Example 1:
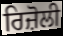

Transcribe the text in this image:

ਰਿਜ਼ੋਲੀ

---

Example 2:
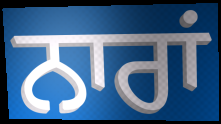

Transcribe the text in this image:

ਨਾਰਾਂ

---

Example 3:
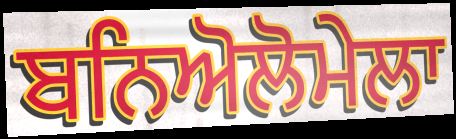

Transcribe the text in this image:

ਬਨਿਅੋਲੋਮੇਲਾ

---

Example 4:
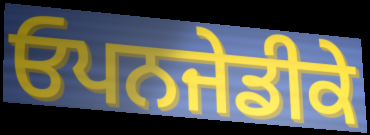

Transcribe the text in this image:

ਓਪਨਜੇਡੀਕੇ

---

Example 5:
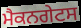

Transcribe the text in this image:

ਮੈਕਨਗੇਟਸ